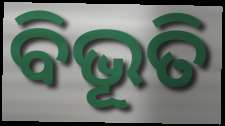
ବିଭୂତି